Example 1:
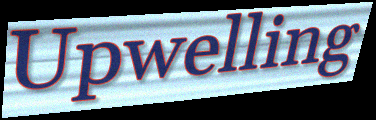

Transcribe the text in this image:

Upwelling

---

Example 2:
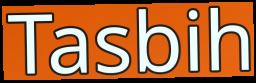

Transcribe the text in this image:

Tasbih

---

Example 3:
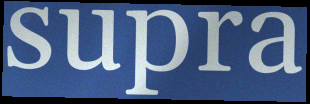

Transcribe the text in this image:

supra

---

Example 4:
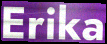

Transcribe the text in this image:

Erika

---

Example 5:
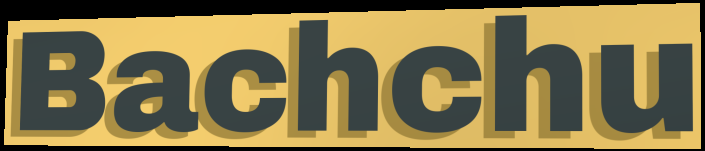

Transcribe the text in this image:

Bachchu